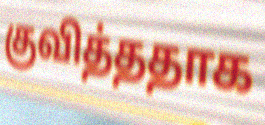
குவித்ததாக